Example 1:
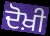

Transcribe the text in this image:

ਦੋਖ਼ੀ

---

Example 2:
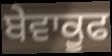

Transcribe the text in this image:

ਬੇਵਾਕੂਫ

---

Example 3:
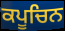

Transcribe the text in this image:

ਕਪੂਚਿਨ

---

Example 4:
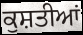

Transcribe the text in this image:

ਕੁਸ਼ਤੀਆਂ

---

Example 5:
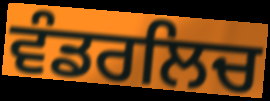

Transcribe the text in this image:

ਵੰਡਰਲਿਚ